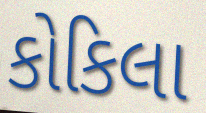
કોકિલા